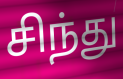
சிந்து